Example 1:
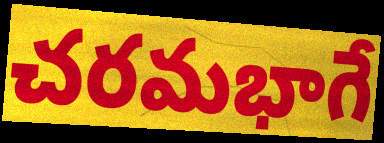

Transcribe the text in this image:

చరమభాగే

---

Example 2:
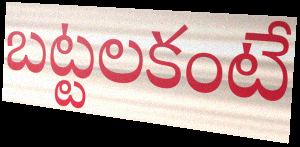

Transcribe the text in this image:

బట్టలకంటే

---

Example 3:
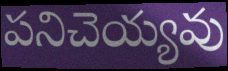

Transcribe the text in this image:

పనిచెయ్యవు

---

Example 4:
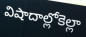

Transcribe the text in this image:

విషాదాల్లోకెల్లా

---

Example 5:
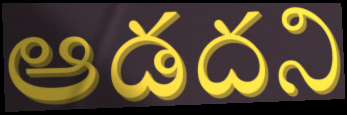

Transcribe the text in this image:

ఆడదని